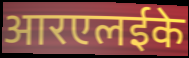
आरएलईके